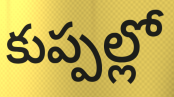
కుప్పల్లో